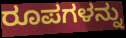
ರೂಪಗಳನ್ನು